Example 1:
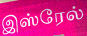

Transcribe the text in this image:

இஸ்ரேல்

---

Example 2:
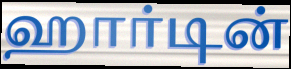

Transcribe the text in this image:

ஹார்டின்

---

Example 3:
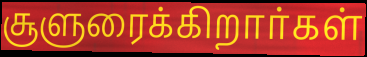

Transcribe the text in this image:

சூளுரைக்கிறார்கள்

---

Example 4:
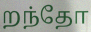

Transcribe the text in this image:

றந்தோ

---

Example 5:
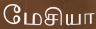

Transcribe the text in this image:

மேசியா